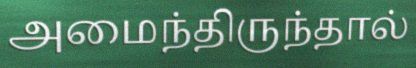
அமைந்திருந்தால்